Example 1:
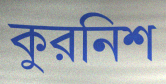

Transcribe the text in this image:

কুরনিশ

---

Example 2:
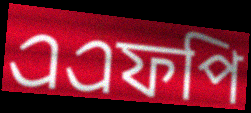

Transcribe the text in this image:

এএফপি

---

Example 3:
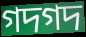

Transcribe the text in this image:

গদগদ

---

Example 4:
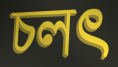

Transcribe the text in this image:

চলৎ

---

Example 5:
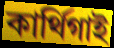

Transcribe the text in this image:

কার্থিগাই